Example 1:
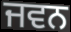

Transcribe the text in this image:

ਜਵਨ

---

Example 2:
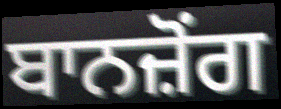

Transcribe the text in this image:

ਬਾਨਜ਼ੋਂਗ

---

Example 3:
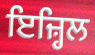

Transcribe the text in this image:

ਇਜ਼੍ਹਿਲ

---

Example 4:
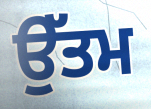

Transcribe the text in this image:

ਉੱਤਮ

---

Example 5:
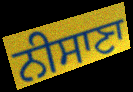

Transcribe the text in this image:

ਨੀਸਾਣਾ